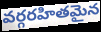
వర్గరహితమైన